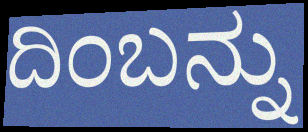
ದಿಂಬನ್ನು